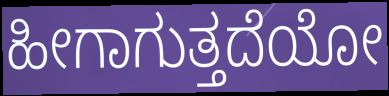
ಹೀಗಾಗುತ್ತದೆಯೋ